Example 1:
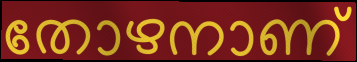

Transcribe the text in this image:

തോഴനാണ്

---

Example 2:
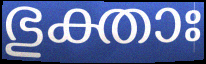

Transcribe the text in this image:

ഭുക്താഃ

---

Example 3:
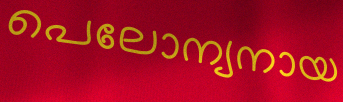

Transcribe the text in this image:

പെലോന്യനായ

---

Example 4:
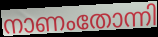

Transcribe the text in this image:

നാണംതോന്നി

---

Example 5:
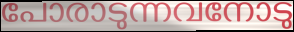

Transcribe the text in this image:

പോരാടുന്നവനോടു